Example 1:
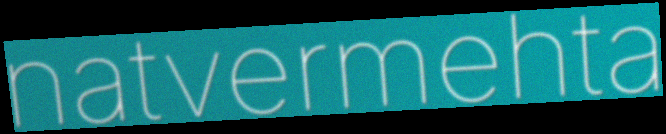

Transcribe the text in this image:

natvermehta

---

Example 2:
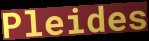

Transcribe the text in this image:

Pleides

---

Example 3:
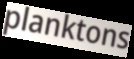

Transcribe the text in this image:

planktons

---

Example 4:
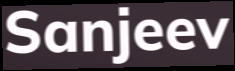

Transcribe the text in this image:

Sanjeev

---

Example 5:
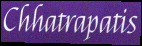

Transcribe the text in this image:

Chhatrapatis